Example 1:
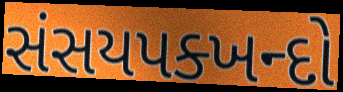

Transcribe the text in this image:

સંસયપક્ખન્દો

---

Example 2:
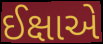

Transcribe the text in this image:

ઈક્ષાએ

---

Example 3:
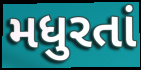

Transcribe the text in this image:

મધુરતાં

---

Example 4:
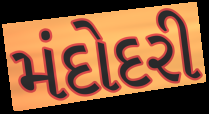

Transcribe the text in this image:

મંદોદરી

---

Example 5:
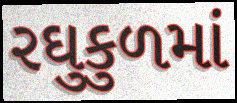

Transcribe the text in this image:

રઘુકુળમાં